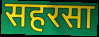
सहरसा